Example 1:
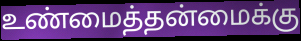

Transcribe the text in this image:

உண்மைத்தன்மைக்கு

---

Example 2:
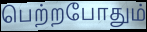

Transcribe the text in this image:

பெற்றபோதும்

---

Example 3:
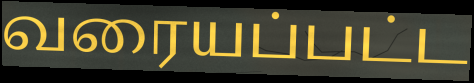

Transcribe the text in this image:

வரையப்பட்ட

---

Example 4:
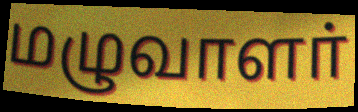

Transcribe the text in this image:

மழுவாளர்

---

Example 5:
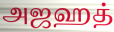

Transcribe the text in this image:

அஜஹத்